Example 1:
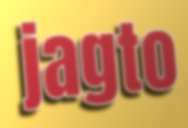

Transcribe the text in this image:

jagto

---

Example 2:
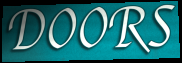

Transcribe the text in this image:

DOORS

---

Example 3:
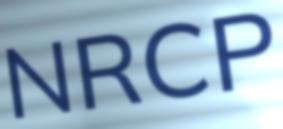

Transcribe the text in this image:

NRCP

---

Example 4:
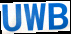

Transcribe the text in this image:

UWB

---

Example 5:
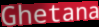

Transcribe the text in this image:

Ghetana